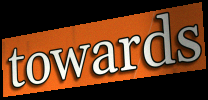
towards